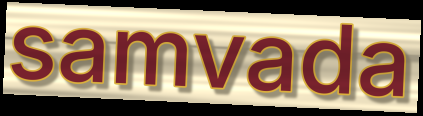
samvada